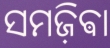
ସମଜ଼ିଵା